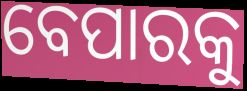
ବେପାରକୁ